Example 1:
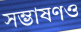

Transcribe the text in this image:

সম্ভাষণও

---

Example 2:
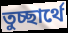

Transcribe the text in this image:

তুচ্ছার্থে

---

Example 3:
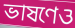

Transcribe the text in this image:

ভাষণেও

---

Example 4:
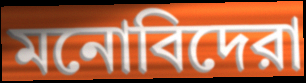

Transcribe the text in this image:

মনোবিদেরা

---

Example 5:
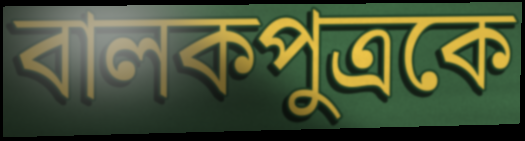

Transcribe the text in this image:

বালকপুত্রকে